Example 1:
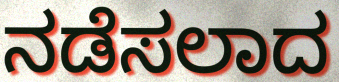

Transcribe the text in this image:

ನಡೆಸಲಾದ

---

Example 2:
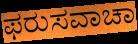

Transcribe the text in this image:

ಫರುಸವಾಚಾ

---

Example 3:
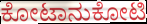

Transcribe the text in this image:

ಕೋಟಾನುಕೋಟಿ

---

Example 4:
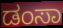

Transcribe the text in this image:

ಡಂಸಾ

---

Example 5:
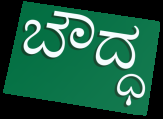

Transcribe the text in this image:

ಬೌದ್ಧ